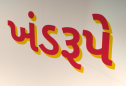
ખંડરૂપે